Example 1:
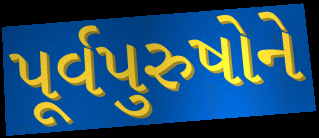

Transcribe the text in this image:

પૂર્વપુરુષોને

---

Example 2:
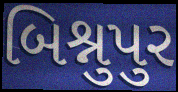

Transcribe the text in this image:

બિશ્નુપુર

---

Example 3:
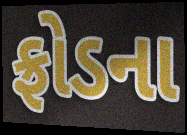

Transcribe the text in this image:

ફ્રોડના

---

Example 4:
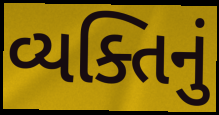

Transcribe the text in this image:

વ્યક્તિનું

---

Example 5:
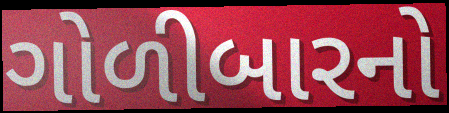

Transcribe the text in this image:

ગોળીબારનો